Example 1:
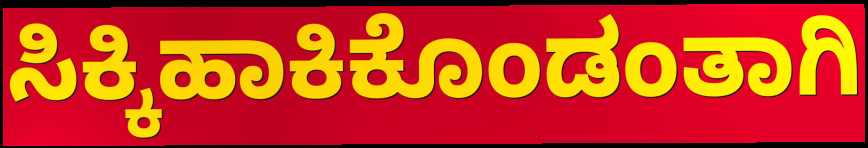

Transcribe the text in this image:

ಸಿಕ್ಕಿಹಾಕಿಕೊಂಡಂತಾಗಿ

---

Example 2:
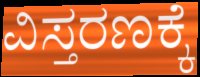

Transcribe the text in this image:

ವಿಸ್ತರಣಕ್ಕೆ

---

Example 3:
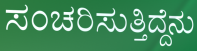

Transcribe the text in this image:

ಸಂಚರಿಸುತ್ತಿದ್ದೆನು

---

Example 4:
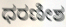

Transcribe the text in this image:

ಧರಣೀಶ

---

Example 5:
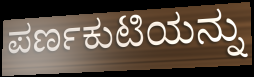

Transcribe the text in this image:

ಪರ್ಣಕುಟಿಯನ್ನು